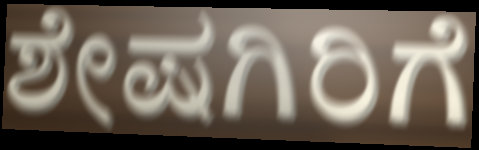
ಶೇಷಗಿರಿಗೆ